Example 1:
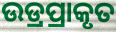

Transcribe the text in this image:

ଉଡ୍ରପ୍ରାକୃତ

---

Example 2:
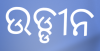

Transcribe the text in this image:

ଉଡ୍ଡୀନ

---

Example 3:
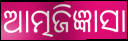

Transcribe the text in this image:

ଆତ୍ମଜିଜ୍ଞାସା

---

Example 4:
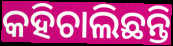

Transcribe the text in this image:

କହିଚାଲିଛନ୍ତି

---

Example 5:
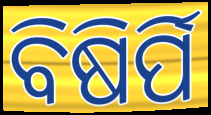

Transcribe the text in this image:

ବିଷିର୍ପି